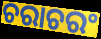
ଚରାଚରଂ